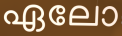
ഏലോ